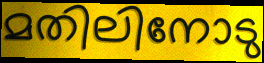
മതിലിനോടു